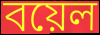
বয়েল